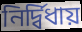
নির্দ্বিধায়